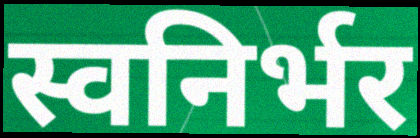
स्वनिर्भर